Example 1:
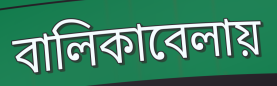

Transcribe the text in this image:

বালিকাবেলায়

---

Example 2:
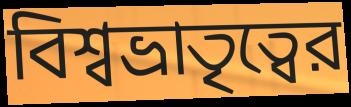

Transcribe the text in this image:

বিশ্বভ্রাতৃত্বের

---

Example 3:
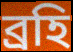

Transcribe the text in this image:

ব্রহি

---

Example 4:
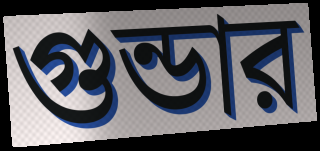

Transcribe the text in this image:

গুন্ডার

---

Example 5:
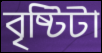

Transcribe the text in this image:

বৃষ্টিটা